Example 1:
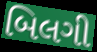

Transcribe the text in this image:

બિલગી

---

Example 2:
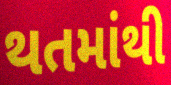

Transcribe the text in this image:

થતમાંથી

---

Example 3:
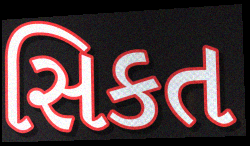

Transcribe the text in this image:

સિકત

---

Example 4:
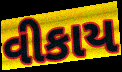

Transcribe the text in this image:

વીકાય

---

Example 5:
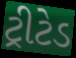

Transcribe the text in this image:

ટ્રીટેડ